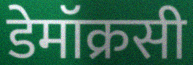
डेमॉक्रसी